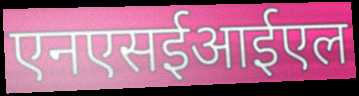
एनएसईआईएल